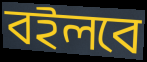
বইলবে